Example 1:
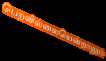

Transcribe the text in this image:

பெறவில்லையென்றாலும்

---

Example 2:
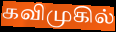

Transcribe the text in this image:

கவிமுகில்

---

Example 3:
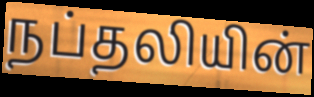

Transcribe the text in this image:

நப்தலியின்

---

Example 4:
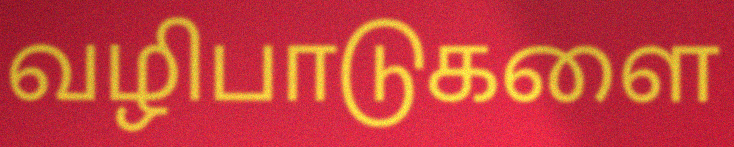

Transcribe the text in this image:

வழிபாடுகளை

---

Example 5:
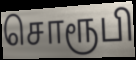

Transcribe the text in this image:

சொரூபி